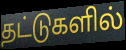
தட்டுகளில்